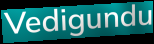
Vedigundu